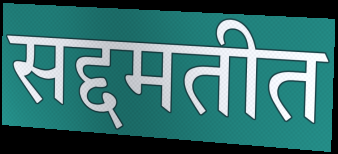
सद्दमतीत